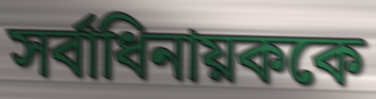
সর্বাধিনায়ককে